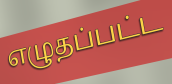
எழுதப்பட்ட